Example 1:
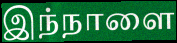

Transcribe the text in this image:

இந்நாளை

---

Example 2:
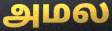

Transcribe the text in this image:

அமல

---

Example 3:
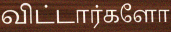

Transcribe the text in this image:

விட்டார்களோ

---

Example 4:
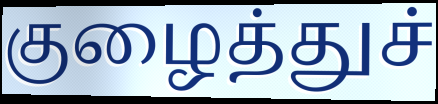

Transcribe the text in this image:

குழைத்துச்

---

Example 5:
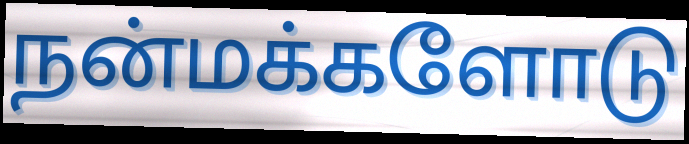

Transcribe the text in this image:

நன்மக்களோடு